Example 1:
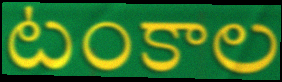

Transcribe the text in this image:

టంకాల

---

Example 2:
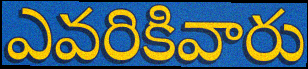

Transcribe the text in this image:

ఎవరికివారు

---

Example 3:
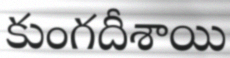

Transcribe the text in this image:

కుంగదీశాయి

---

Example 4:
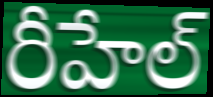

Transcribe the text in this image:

రీహేల్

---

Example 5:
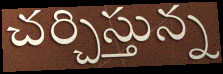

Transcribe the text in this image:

చర్చిస్తున్న